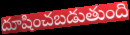
దూషించబడుతుంది